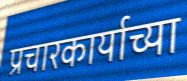
प्रचारकार्याच्या